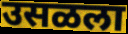
उसळला